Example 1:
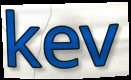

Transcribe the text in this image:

kev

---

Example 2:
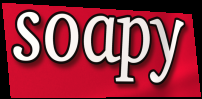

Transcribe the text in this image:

soapy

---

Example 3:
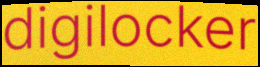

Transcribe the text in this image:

digilocker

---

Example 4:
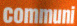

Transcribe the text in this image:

communi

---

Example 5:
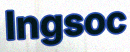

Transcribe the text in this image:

Ingsoc